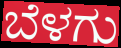
ಬೆಳಗು